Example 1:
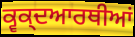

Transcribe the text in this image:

ਕ੍ਵਕ੍ਦਆਰਥੀਆਂ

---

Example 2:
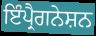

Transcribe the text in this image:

ਇੰਪ੍ਰੈਗਨੇਸ਼ਨ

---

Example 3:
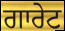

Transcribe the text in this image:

ਗਾਰੇਟ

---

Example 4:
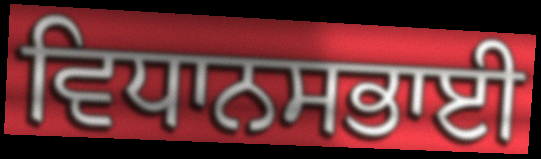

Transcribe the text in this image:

ਵਿਧਾਨਸਭਾਈ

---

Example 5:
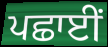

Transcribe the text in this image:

ਪਛਾਈਂ